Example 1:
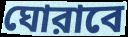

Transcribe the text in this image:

ঘোরাবে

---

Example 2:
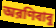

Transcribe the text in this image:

অরণিবাবু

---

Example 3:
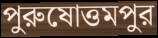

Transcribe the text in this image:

পুরুষোত্তমপুর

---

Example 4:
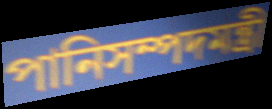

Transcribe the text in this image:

পানিসম্পদমন্ত্রী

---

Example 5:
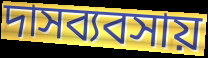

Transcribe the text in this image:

দাসব্যবসায়